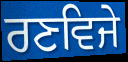
ਰਣਵਿਜੇ